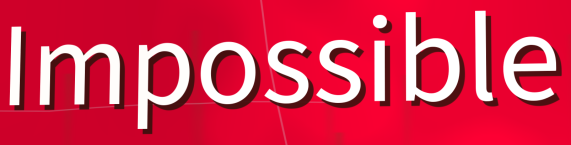
Impossible